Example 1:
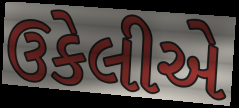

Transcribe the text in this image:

ઉકેલીએ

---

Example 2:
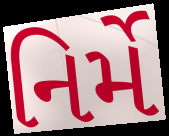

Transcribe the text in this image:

નિર્મે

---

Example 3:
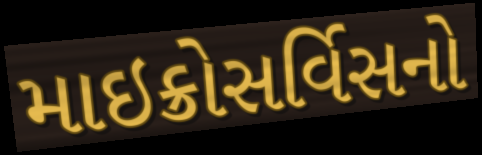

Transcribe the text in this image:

માઇક્રોસર્વિસનો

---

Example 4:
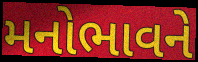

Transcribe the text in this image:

મનોભાવને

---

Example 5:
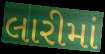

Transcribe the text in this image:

લારીમાં